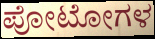
ಪೋಟೋಗಳ